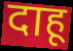
दाहू